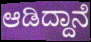
ಆಡಿದ್ದಾನೆ